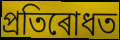
প্ৰতিৰোধত